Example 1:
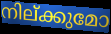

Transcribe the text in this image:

നില്ക്കുമോ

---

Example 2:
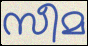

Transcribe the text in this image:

സീമ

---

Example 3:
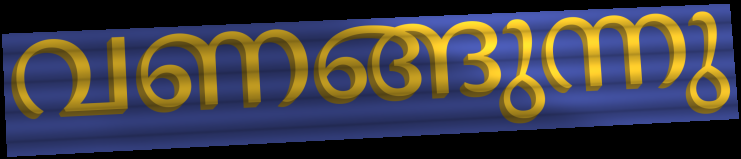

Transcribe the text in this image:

വണങ്ങുന്നു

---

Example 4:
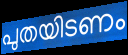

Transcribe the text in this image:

പുതയിടണം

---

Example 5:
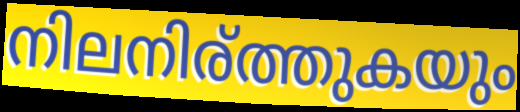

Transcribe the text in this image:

നിലനിര്ത്തുകയും